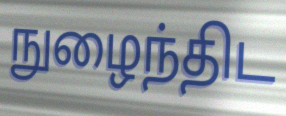
நுழைந்திட